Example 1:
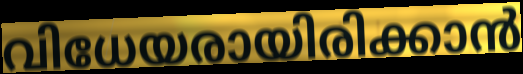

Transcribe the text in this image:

വിധേയരായിരിക്കാൻ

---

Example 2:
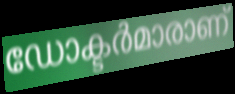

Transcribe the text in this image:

ഡോക്ടർമാരാണ്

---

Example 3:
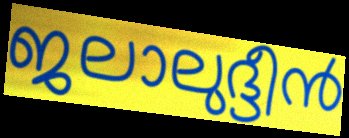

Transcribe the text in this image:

ജലാലുദ്ദീൻ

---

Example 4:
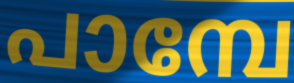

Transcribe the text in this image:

പാമ്പേ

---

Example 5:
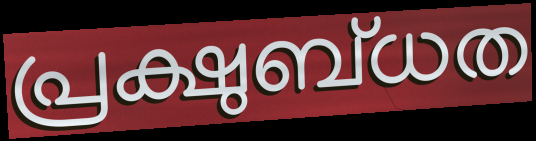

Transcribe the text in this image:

പ്രക്ഷുബ്ധത